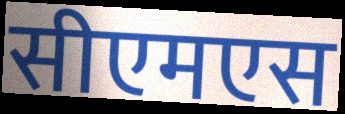
सीएमएस